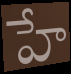
హే